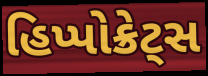
હિપ્પોક્રેટ્સ